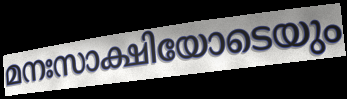
മനഃസാക്ഷിയോടെയും